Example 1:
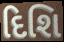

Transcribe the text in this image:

દિશિ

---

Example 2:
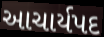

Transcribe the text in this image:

આચાર્યપદ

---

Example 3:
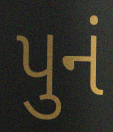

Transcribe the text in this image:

પુનં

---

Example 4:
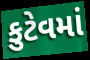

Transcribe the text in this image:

કુટેવમાં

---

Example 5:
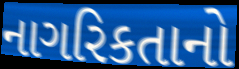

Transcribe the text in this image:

નાગરિકતાનો